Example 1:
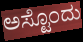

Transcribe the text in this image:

ಅಸ್ಟೊಂದು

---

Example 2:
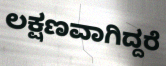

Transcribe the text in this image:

ಲಕ್ಷಣವಾಗಿದ್ದರೆ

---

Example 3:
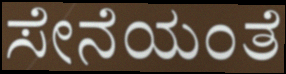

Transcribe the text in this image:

ಸೇನೆಯಂತೆ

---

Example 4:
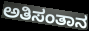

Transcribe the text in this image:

ಅತಿಸಂತಾನ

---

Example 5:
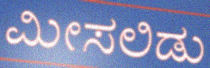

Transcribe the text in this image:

ಮೀಸಲಿಡು